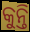
କୁନ୍ତି